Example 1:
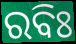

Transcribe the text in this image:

ରବିଃ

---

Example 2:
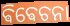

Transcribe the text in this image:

ଵିଵେଚନା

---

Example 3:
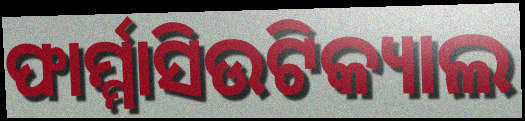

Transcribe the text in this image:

ଫାର୍ମ୍ମାସିଉଟିକ୍ୟାଲ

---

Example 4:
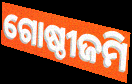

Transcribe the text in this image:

ଗୋଷ୍ଠୀଜମି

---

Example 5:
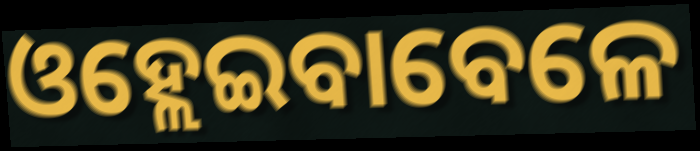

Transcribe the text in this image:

ଓହ୍ଲେଇବାବେଳେ